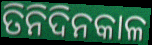
ତିନିଦିନକାଳ